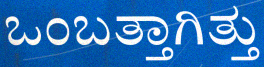
ಒಂಬತ್ತಾಗಿತ್ತು